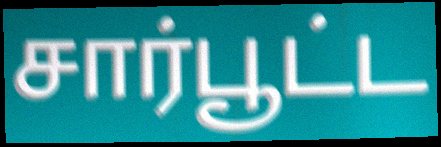
சார்பூட்ட